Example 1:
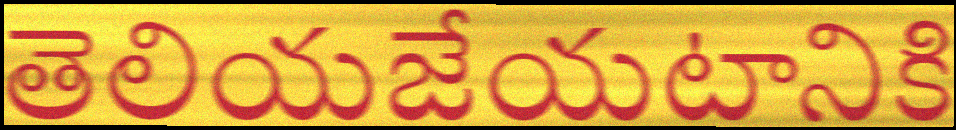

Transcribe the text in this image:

తెలియజేయటానికి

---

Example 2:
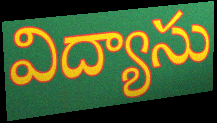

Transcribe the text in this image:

విద్యాసు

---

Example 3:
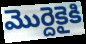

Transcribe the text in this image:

మొర్దెకైకి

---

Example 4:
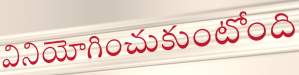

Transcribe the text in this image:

వినియోగించుకుంటోంది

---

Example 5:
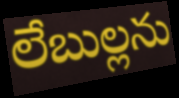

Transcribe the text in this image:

లేబుల్లను